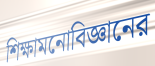
শিক্ষামনোবিজ্ঞানের